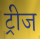
ट्रीज